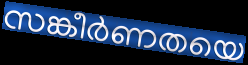
സങ്കീർണതയെ